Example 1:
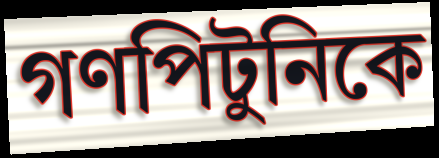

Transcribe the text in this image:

গণপিটুনিকে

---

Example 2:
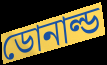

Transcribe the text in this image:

ডোনাল্ড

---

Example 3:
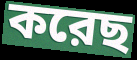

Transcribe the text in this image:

করেছ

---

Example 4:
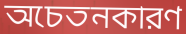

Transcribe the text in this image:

অচেতনকারণ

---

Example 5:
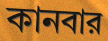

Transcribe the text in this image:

কানবার